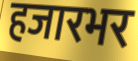
हजारभर